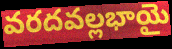
వరదవల్లభాయై